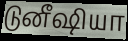
டுனீஷியா